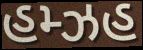
હમ્ઝહ